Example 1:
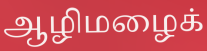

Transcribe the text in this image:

ஆழிமழைக்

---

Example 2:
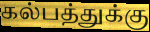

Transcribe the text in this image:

கல்பத்துக்கு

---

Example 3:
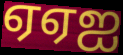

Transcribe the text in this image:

ஏஏஐ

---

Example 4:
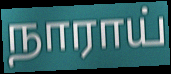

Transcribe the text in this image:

நாராய்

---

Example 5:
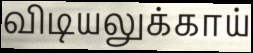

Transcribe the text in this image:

விடியலுக்காய்